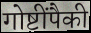
गोष्टींपैकी